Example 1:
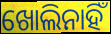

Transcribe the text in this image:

ଖୋଲିନାହିଁ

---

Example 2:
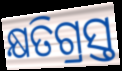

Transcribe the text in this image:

କ୍ଷତିଗ୍ରସ୍ତ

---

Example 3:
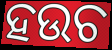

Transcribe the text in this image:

ହଉଚ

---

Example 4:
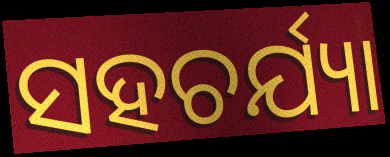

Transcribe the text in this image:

ସହଚର୍ଯ୍ୟା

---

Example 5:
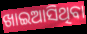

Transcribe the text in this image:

ଖାଇଆସିଥିବା